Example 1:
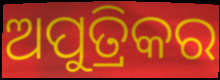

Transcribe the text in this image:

ଅପୁତ୍ରିକର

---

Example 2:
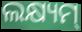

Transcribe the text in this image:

ଲକ୍ଷ୍ୟମ୍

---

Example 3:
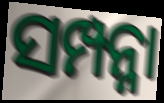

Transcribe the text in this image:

ସମ୍ପନ୍ନା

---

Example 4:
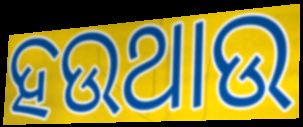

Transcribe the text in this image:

ହଉଥାଉ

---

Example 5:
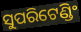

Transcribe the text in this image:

ସୁପରିଟେଣ୍ଡିଂ